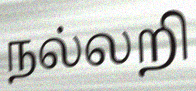
நல்லறி